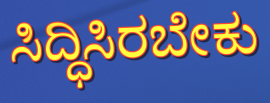
ಸಿದ್ಧಿಸಿರಬೇಕು